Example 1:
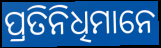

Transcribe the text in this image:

ପ୍ରତିନିଧିମାନେ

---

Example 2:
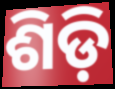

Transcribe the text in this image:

ଶିଡ଼ି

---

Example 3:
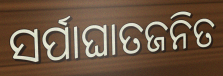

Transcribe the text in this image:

ସର୍ପାଘାତଜନିତ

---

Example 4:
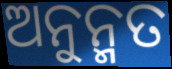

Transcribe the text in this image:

ଅନୁନ୍ମତ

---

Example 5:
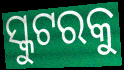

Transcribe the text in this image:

ସ୍କୁଟରକୁ